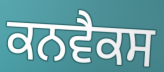
ਕਨਵੈਕਸ